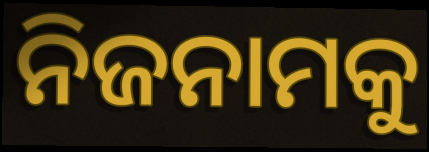
ନିଜନାମକୁ